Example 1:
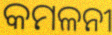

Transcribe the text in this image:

କମଳନୀ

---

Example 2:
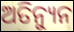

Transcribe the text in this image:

ଅତିନ୍ୟୁନ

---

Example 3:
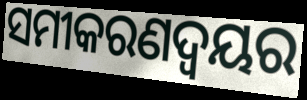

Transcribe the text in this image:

ସମୀକରଣଦ୍ଵୟର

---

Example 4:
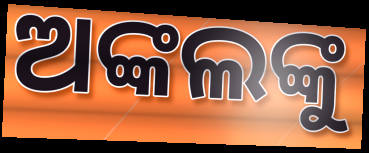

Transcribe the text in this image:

ଅଙ୍କଲଙ୍କୁ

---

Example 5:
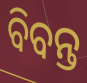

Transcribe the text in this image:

ବିବନ୍ତ